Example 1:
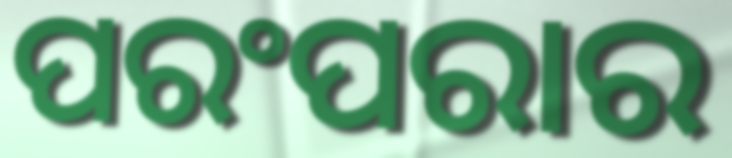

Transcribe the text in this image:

ପରଂପରାର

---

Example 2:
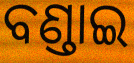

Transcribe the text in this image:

ବଣ୍ଡାଇ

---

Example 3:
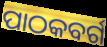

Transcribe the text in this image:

ପାଠକବର୍ଗ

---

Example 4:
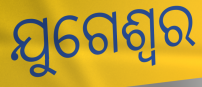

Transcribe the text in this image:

ଯୁଗେଶ୍ଵର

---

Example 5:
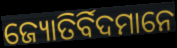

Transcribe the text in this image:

ଜ୍ୟୋତିର୍ବିଦମାନେ